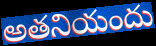
అతనియందు